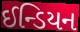
ઈન્ડિયન